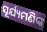
ସୂର୍ଯ୍ୟମଣିଙ୍କ